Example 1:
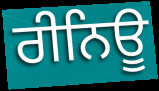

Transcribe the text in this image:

ਰੀਨਿਊ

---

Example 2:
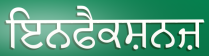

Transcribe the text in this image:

ਇਨਫੈਕਸ਼ਨਜ਼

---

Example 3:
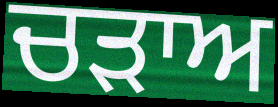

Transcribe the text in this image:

ਚੜਾਅ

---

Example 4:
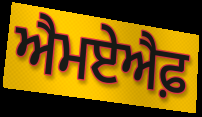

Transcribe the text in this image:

ਐਮਏਐਫ਼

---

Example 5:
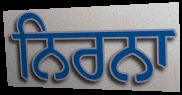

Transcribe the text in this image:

ਨਿਰਨਾ